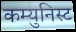
कम्युनिस्ट